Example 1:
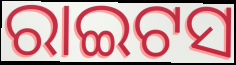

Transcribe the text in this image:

ରାଇଟସ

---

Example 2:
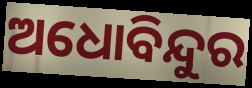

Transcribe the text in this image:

ଅଧୋବିନ୍ଦୁର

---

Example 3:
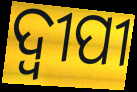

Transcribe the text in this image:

ଦ୍ଵୀପୀ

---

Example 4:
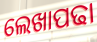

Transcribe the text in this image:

ଲେଖାପଢା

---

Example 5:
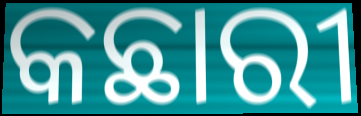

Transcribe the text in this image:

କଛାରୀ